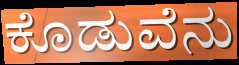
ಕೊಡುವೆನು